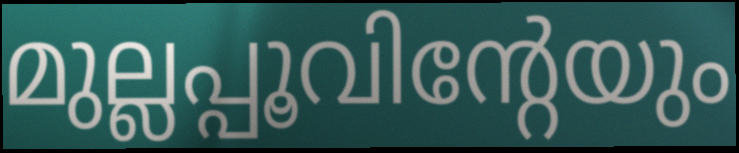
മുല്ലപ്പൂവിന്റേയും